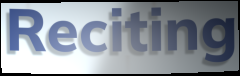
Reciting